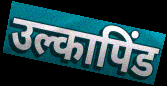
उल्कापिंड